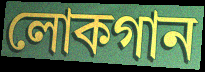
লোকগান